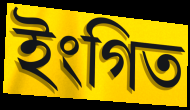
ইংগিত